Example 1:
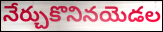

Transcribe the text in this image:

నేర్చుకొనినయెడల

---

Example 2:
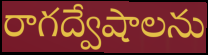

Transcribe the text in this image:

రాగద్వేషాలను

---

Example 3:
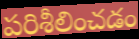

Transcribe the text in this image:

పరిశీలించడం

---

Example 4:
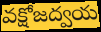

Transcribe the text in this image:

వక్షోజద్వయ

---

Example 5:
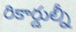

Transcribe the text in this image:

రికార్డుల్నీ